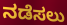
ನಡೆಸಲು